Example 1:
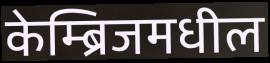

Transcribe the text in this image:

केम्ब्रिजमधील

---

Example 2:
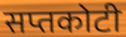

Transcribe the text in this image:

सप्तकोटी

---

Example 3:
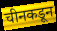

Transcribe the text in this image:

चीनकडून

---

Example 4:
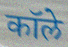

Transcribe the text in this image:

कॉले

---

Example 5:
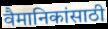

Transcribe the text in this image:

वैमानिकांसाठी